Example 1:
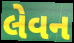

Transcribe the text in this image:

લેવન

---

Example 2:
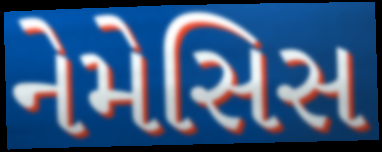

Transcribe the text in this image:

નેમેસિસ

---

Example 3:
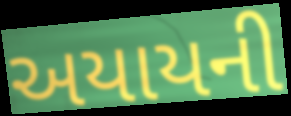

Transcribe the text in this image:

અયાયની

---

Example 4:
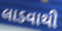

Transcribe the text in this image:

લાડવાથી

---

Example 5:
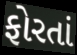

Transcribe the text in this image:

ફોરતાં